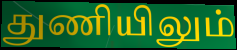
துணியிலும்